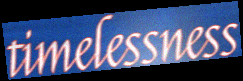
timelessness